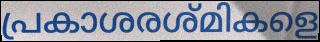
പ്രകാശരശ്മികളെ